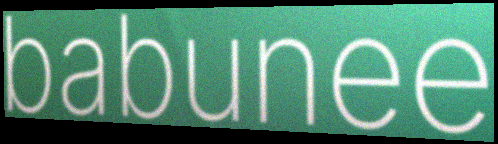
babunee